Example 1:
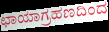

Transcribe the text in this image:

ಛಾಯಾಗ್ರಹಣದಿಂದ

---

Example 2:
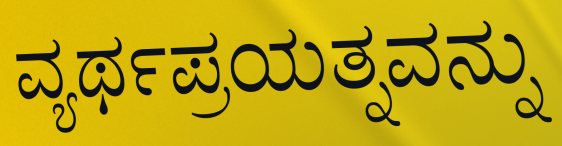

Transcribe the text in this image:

ವ್ಯರ್ಥಪ್ರಯತ್ನವನ್ನು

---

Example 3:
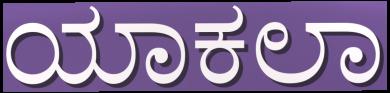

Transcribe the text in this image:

ಯಾಕಲಾ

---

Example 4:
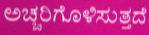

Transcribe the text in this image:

ಅಚ್ಚರಿಗೊಳಿಸುತ್ತದೆ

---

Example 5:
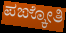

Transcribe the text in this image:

ಪಙ್ಕೋತಿ